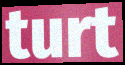
turt